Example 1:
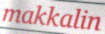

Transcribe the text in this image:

makkalin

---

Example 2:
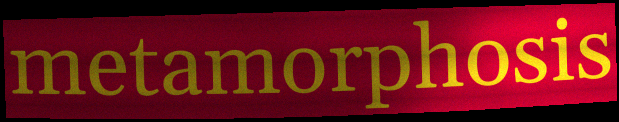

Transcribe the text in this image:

metamorphosis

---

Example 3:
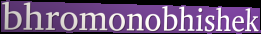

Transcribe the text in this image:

bhromonobhishek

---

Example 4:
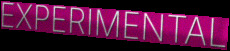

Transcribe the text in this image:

EXPERIMENTAL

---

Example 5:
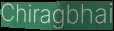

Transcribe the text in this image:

Chiragbhai